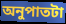
অনুপাতটা